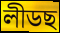
লীডছ